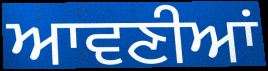
ਆਵਣੀਆਂ